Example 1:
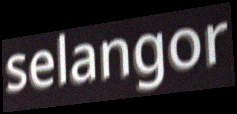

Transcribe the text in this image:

selangor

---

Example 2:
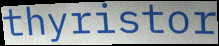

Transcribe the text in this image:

thyristor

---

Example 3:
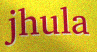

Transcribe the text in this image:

jhula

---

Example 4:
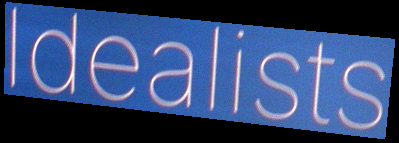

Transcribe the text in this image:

Idealists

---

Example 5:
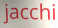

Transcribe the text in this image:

jacchi